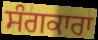
ਸੰਗਕਾਰਾ